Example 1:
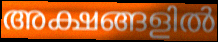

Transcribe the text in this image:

അക്ഷങ്ങളിൽ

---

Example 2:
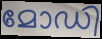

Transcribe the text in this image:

മോഡി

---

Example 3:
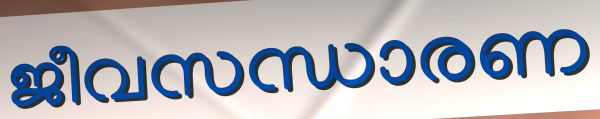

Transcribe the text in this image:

ജീവസന്ധാരണ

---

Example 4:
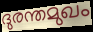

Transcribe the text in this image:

ദുരന്തമുഖം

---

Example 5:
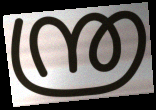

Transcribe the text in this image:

ന്ത്ര